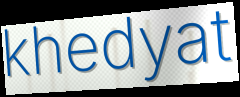
khedyat